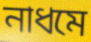
নাধমে